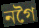
নগৈ